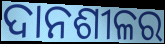
ଦାନଶୀଳର